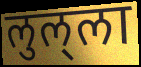
लुल्ला